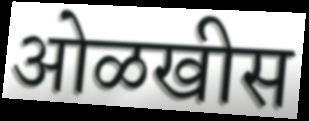
ओळखीस